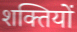
शक्तियों